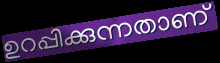
ഉറപ്പിക്കുന്നതാണ്